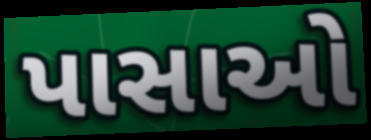
પાસાઓ